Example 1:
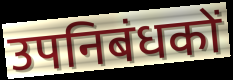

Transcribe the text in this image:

उपनिबंधकों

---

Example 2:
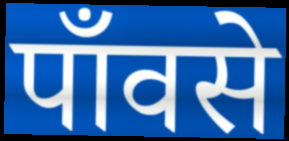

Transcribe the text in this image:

पाँवसे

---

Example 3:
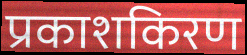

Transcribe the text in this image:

प्रकाशकिरण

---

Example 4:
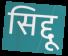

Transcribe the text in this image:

सिद्दू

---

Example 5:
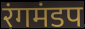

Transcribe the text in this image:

रंगमंडप